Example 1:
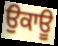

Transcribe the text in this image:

ਉਕਾਊ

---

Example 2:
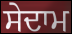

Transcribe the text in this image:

ਸੇਦਾਮ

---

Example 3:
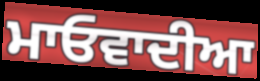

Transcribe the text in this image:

ਮਾਓਵਾਦੀਆ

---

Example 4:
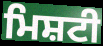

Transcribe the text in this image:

ਮਿਸ਼ਟੀ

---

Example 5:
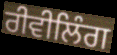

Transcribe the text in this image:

ਰੀਵੀਲਿੰਗ